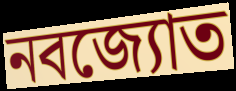
নবজ্যোত